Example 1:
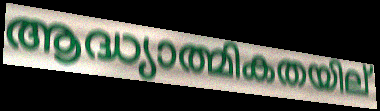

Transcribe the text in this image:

ആദ്ധ്യാത്മികതയില്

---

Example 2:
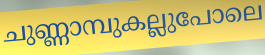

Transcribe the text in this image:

ചുണ്ണാമ്പുകല്ലുപോലെ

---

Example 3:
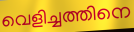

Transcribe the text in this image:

വെളിച്ചത്തിനെ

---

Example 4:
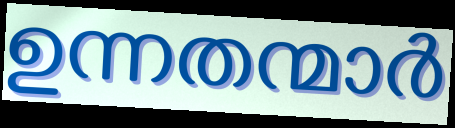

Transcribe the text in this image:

ഉന്നതന്മാർ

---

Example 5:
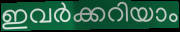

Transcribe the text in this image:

ഇവർക്കറിയാം